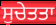
ਸੁਚੇਤਤਾ